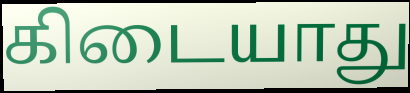
கிடையாது